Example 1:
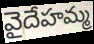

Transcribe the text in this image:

వైదేహమ్మ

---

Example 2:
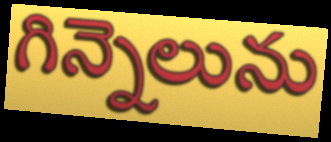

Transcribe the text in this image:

గిన్నెలును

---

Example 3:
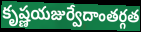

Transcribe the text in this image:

కృష్ణయజుర్వేదాంతర్గత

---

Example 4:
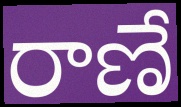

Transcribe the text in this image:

రాణే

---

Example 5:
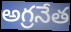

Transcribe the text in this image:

అగ్రనేత